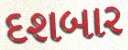
દશબાર